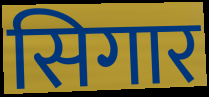
सिगार